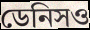
ডেনিসও